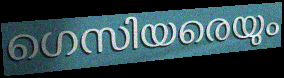
ഗെസിയരെയും